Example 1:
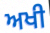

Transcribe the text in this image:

ਅਖੀ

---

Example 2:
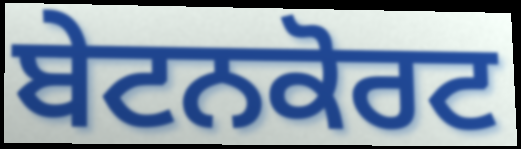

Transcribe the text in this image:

ਬੇਟਨਕੋਰਟ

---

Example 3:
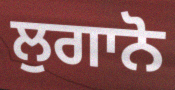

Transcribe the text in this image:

ਲੁਗਾਨੋ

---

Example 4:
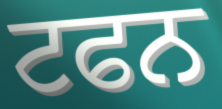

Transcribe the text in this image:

ਟਫਨ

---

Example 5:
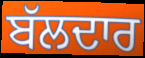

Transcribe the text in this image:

ਬੱਲਦਾਰ